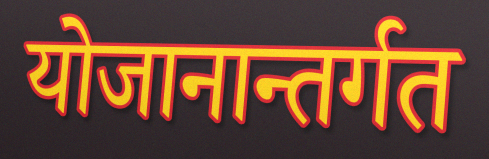
योजानान्तर्गत